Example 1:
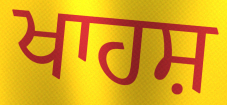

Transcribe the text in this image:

ਖਾਹਸ਼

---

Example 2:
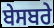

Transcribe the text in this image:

ਬੇਸਬਰੇ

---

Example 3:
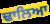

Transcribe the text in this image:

ਢਾਲਿਆ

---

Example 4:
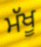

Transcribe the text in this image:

ਮੱਖੂ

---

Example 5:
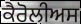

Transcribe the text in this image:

ਕੈਰੋਲੀਅਸ